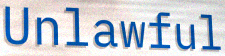
Unlawful